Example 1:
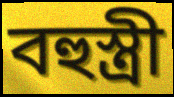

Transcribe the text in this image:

বহুস্ত্ৰী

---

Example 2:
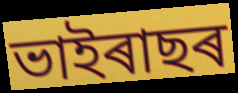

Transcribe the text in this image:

ভাইৰাছৰ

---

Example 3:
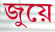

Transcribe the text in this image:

জুয়ে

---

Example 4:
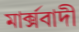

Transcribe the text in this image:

মাৰ্ক্সবাদী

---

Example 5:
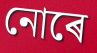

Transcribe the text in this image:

নোৰে